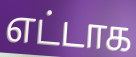
எட்டாக